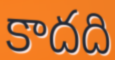
కాదది